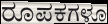
ರೂಪಕಗಳೂ